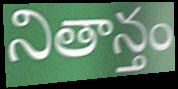
నితాన్తం